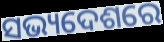
ସଭ୍ୟଦେଶରେ